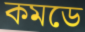
কমডে